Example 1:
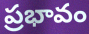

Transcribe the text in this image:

ప్రభావం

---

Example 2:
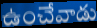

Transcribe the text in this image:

ఉంచేవాడు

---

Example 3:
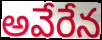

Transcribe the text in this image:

అవేరేన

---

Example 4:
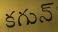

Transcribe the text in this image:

కగున్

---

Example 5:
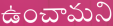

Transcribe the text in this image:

ఉంచామని